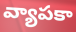
వ్యాపకా